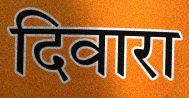
दिवारा